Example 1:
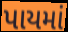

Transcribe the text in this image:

પાયમાં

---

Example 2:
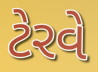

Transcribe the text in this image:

ટેરવે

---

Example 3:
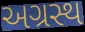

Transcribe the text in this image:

અગ્રસ્થ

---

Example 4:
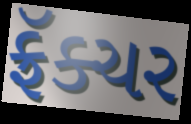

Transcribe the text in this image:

ફ્રૅક્ચર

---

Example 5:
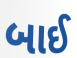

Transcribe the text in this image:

બાઈ